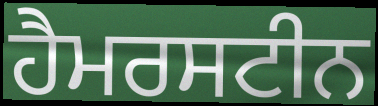
ਹੈਮਰਸਟੀਨ